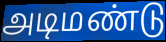
அடிமண்டு